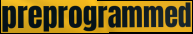
preprogrammed